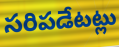
సరిపడేటట్లు